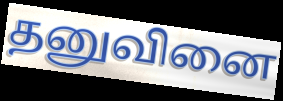
தனுவினை